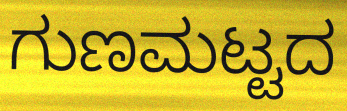
ಗುಣಮಟ್ಟದ